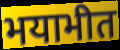
भयाभीत